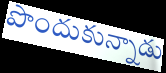
పొందుకున్నాడు